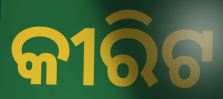
କୀରିଟ